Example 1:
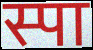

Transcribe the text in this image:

स्पा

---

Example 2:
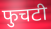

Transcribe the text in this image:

फुचटी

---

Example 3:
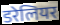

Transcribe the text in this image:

डरेलियर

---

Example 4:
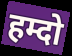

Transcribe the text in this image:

हम्दो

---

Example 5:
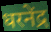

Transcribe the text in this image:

धरनेंद्र